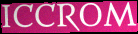
ICCROM